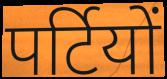
पर्टियों